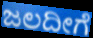
ಜಲದೀಗೆ